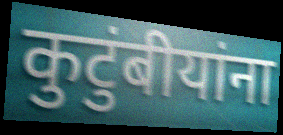
कुटुंबीयांना